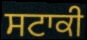
ਸਟਾਕੀ